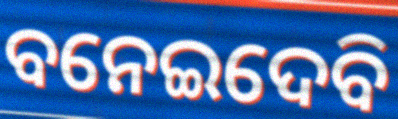
ବନେଇଦେବି